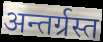
अन्तर्ग्रस्त